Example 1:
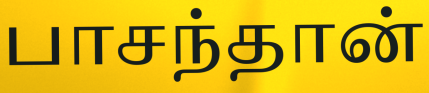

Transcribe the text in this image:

பாசந்தான்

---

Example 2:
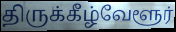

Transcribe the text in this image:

திருக்கீழ்வேளூர்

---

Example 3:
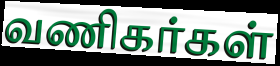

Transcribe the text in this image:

வணிகர்கள்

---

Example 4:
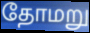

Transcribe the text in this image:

தோமறு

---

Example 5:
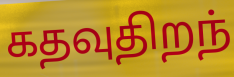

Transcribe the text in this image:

கதவுதிறந்